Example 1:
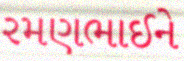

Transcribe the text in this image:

રમણભાઈને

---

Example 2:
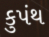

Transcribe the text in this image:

કુપંથ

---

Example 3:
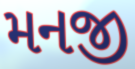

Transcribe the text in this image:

મનજી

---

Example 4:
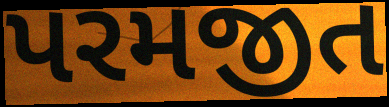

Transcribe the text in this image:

પરમજીત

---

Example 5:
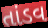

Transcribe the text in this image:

તાંડવ